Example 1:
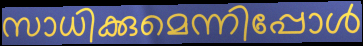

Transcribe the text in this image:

സാധിക്കുമെന്നിപ്പോൾ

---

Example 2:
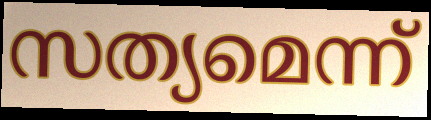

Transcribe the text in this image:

സത്യമെന്ന്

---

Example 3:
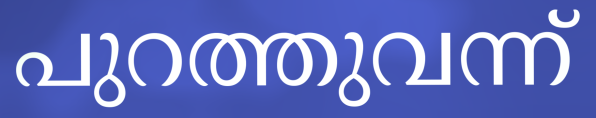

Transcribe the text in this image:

പുറത്തുവന്ന്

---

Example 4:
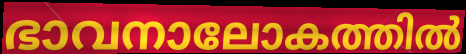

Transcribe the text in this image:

ഭാവനാലോകത്തിൽ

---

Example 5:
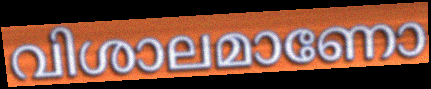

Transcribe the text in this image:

വിശാലമാണോ